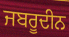
ਜਬਰੂਦੀਨ